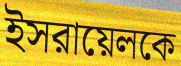
ইসরায়েলকে